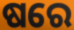
ଷରେ